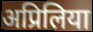
अप्रिलिया